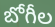
బోగీల